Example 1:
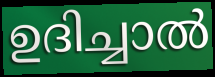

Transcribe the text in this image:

ഉദിച്ചാൽ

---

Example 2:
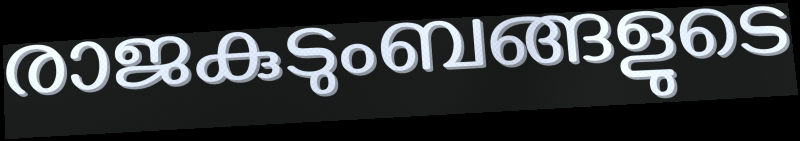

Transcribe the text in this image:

രാജകുടുംബങ്ങളുടെ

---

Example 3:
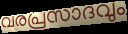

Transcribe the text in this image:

വരപ്രസാദവും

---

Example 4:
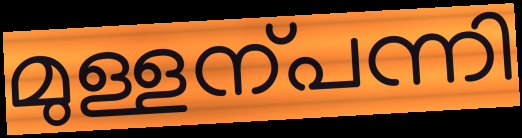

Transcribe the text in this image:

മുള്ളന്പന്നി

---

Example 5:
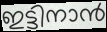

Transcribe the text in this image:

ഇട്ടിനാൻ